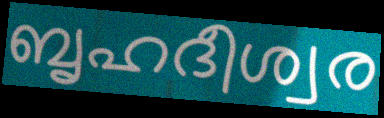
ബൃഹദീശ്വര